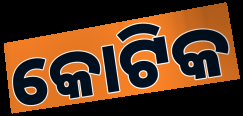
କୋଟିକ